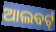
ଆଲବର୍ଟ୍